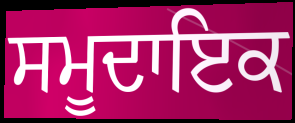
ਸਮੂਦਾਇਕ